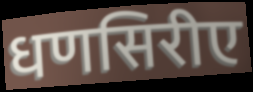
धणसिरीए